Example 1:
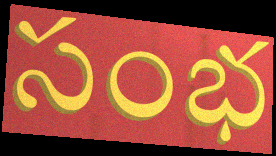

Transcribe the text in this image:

సంభ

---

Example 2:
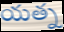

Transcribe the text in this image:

యత్న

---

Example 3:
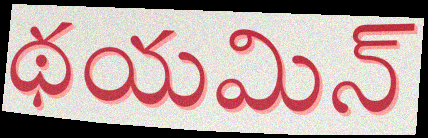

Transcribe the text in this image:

థయమిన్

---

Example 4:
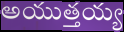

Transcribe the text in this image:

అయుత్తయ్య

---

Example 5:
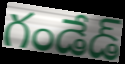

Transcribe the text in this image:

గండేడ్